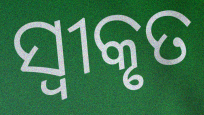
ସ୍ବୀକୃତ